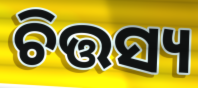
ଚିତ୍ତସ୍ୟ